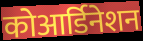
कोआर्डिनेशन